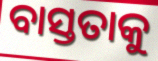
ବାସ୍ତତାକୁ